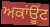
ਅਕਾਂਊਂਟ